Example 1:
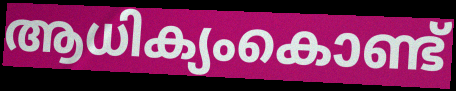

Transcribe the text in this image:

ആധിക്യംകൊണ്ട്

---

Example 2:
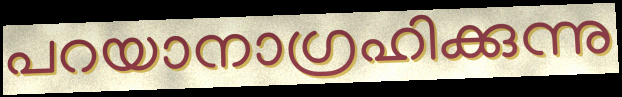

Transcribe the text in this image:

പറയാനാഗ്രഹിക്കുന്നു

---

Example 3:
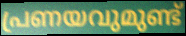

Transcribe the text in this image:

പ്രണയവുമുണ്ട്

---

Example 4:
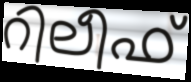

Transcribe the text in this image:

റിലീഫ്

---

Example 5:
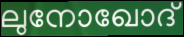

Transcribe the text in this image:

ലുനോഖോദ്